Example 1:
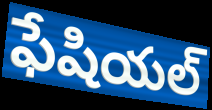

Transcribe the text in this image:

ఫేషియల్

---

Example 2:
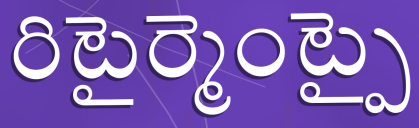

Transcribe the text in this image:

రిటైర్మెంట్పై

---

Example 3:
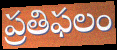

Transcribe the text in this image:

ప్రతిఫలం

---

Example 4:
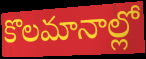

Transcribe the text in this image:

కొలమానాల్లో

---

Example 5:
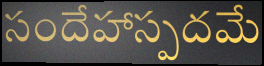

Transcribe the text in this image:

సందేహాస్పదమే